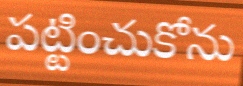
పట్టించుకోను